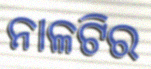
ନାଳଟିର